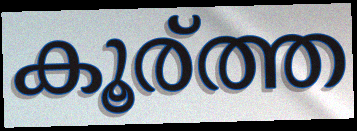
കൂര്ത്ത